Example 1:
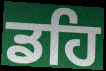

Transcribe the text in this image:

ਡਹਿ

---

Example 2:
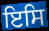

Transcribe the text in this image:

ਇਸਿ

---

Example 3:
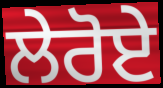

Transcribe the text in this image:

ਲੇਰੋਏ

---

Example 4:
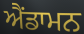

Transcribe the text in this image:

ਐਂਡਾਮਨ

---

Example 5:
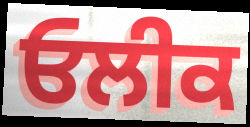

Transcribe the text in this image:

ਓਲੀਕ